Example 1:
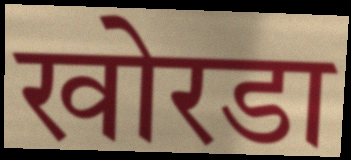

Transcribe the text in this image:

खोरडा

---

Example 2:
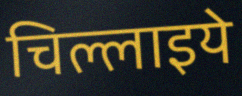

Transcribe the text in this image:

चिल्लाइये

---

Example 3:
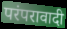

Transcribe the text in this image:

परंपरावादी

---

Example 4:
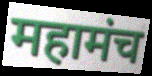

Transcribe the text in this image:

महामंच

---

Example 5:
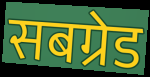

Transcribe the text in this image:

सबग्रेड